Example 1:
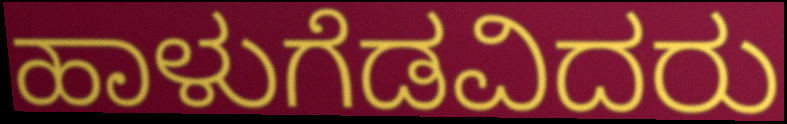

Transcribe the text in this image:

ಹಾಳುಗೆಡವಿದರು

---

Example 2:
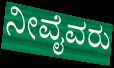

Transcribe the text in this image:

ನೀವೈವರು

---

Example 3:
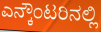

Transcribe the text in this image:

ಎನ್ಕೌಂಟರಿನಲ್ಲಿ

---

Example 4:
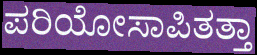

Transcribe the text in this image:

ಪರಿಯೋಸಾಪಿತತ್ತಾ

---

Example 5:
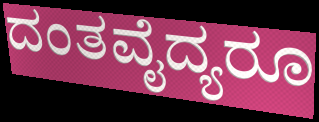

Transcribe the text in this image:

ದಂತವೈದ್ಯರೂ